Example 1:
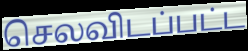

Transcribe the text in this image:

செலவிடப்பட்ட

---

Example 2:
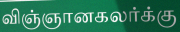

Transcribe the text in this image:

விஞ்ஞானகலர்க்கு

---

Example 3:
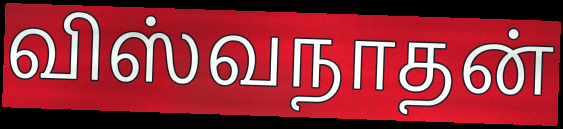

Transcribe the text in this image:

விஸ்வநாதன்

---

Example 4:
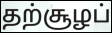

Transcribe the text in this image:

தற்சூழப்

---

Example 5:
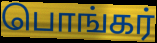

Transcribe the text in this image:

பொங்கர்